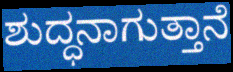
ಶುದ್ಧನಾಗುತ್ತಾನೆ